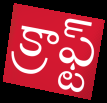
క్రాఫ్ట్